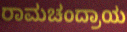
ರಾಮಚಂದ್ರಾಯ